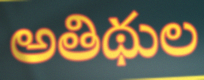
అతిథుల